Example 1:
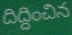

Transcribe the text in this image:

దిద్దించిన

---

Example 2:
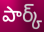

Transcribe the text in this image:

పార్క్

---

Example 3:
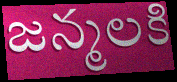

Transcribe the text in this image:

జన్మలకి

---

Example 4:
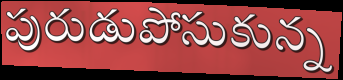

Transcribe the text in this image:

పురుడుపోసుకున్న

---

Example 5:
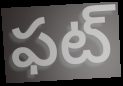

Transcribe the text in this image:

ఫట్